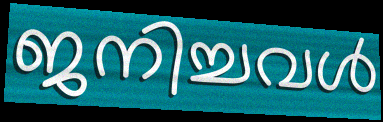
ജനിച്ചവൾ